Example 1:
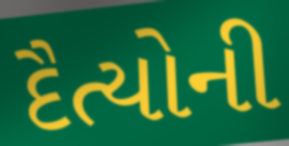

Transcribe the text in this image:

દૈત્યોની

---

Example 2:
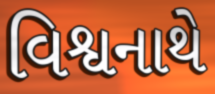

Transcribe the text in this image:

વિશ્વનાથે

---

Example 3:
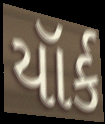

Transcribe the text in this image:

યૉર્ક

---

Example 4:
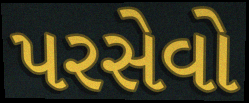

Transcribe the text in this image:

પરસેવો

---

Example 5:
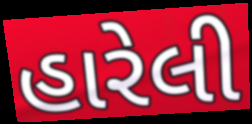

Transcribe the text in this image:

હારેલી